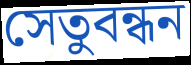
সেতুবন্ধন